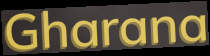
Gharana